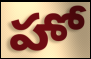
హో